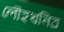
লৌহখনিত্র